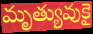
మృత్యువుకై